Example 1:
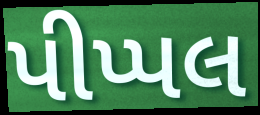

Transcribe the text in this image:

પીપ્પલ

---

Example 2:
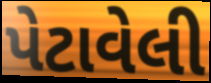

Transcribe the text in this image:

પેટાવેલી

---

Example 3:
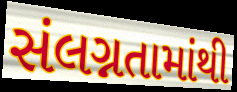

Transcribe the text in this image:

સંલગ્નતામાંથી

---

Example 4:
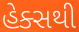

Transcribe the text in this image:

હેક્સથી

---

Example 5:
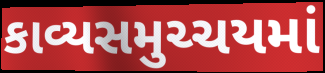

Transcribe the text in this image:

કાવ્યસમુચ્ચયમાં